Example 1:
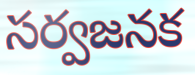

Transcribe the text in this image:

సర్వజనక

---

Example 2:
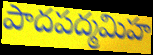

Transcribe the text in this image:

పాదపద్మమిహ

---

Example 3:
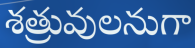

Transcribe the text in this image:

శత్రువులనుగా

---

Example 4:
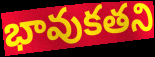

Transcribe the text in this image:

భావుకతని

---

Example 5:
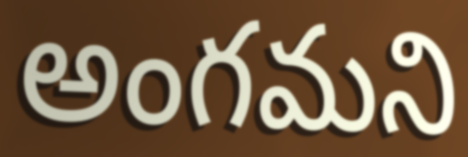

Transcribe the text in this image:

అంగమని